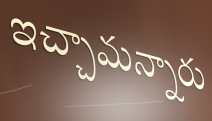
ఇచ్చామన్నారు